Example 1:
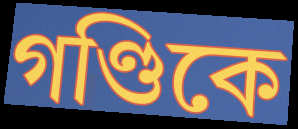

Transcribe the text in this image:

গণ্ডিকে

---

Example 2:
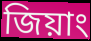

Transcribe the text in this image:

জিয়াং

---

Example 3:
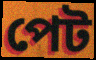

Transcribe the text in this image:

পেট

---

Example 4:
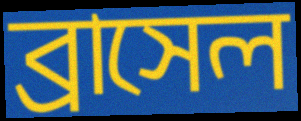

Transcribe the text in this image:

ব্রাসেল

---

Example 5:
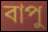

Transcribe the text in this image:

বাপু